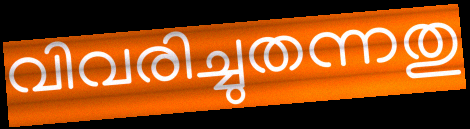
വിവരിച്ചുതന്നതു